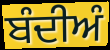
ਬੰਦੀਅੰ